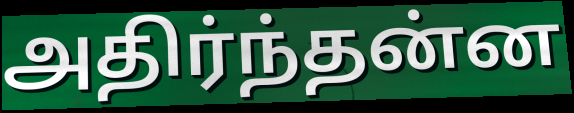
அதிர்ந்தன்ன